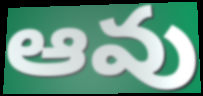
ఆవు